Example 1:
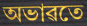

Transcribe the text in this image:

অভাৱতে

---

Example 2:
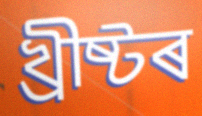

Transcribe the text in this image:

খ্ৰীষ্টৰ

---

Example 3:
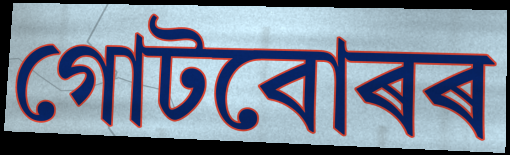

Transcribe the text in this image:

গোটবোৰৰ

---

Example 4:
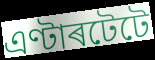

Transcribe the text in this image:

এণ্টাৰটেটে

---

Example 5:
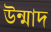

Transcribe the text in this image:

উন্মাদ